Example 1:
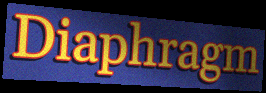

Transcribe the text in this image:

Diaphragm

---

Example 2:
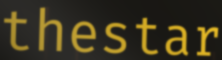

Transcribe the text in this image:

thestar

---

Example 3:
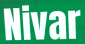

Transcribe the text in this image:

Nivar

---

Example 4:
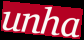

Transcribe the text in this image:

unha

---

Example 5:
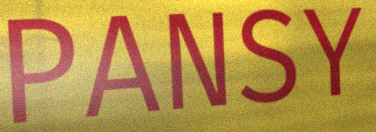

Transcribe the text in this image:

PANSY